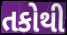
તકોથી